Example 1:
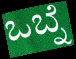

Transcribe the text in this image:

ಒಬ್ನೆ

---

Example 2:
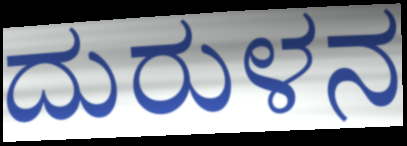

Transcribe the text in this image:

ದುರುಳನ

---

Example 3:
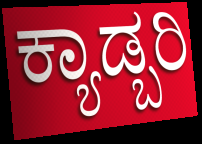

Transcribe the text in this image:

ಕ್ಯಾಡ್ಬರಿ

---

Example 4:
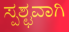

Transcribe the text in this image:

ಸ್ಪಶ್ಟವಾಗಿ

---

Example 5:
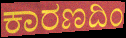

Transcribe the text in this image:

ಕಾರಣದಿಂ